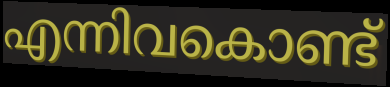
എന്നിവകൊണ്ട്